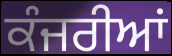
ਕੰਜਰੀਆਂ